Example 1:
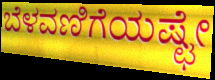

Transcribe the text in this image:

ಬೆಳವಣಿಗೆಯಷ್ಟೇ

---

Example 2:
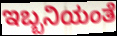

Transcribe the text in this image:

ಇಬ್ಬನಿಯಂತೆ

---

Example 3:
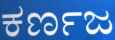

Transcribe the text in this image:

ಕರ್ಣಜ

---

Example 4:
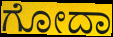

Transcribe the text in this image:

ಗೋದಾ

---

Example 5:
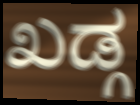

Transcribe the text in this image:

ಖಡ್ಗ